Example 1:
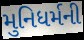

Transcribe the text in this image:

મુનિધર્મની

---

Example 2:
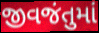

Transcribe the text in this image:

જીવજંતુમાં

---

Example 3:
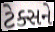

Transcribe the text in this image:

ટેક્સને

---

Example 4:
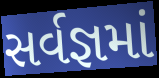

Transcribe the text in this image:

સર્વજ્ઞમાં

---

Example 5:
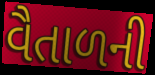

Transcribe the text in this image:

વૈતાળની